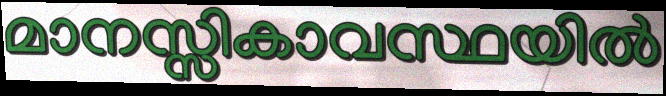
മാനസ്സികാവസ്ഥയിൽ